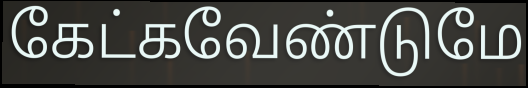
கேட்கவேண்டுமே